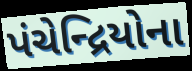
પંચેન્દ્રિયોના